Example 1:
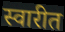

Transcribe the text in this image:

स्वारीत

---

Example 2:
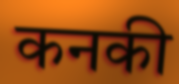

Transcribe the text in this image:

कनकी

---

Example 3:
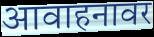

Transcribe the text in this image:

आवाहनावर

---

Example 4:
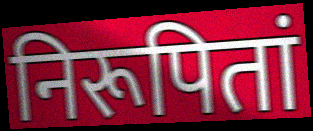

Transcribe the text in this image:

निरूपितां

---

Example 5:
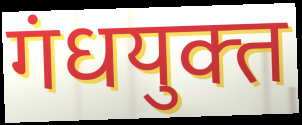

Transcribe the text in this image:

गंधयुक्‍त